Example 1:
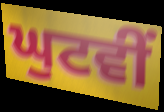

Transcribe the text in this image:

ਘੁਟਵੀਂ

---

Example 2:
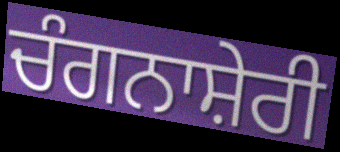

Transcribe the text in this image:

ਚੰਗਨਾਸ਼ੇਰੀ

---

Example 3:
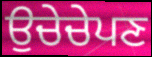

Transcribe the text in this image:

ਉਚੇਚੇਪਣ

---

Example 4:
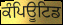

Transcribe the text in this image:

ਕੰਪਿਊਟਿਡ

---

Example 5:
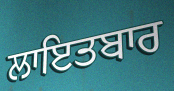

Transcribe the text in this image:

ਲਾਇਤਬਾਰ